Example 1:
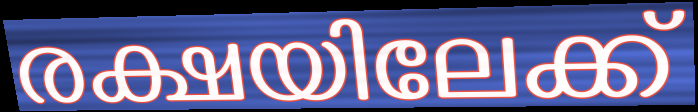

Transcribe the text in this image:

രക്ഷയിലേക്ക്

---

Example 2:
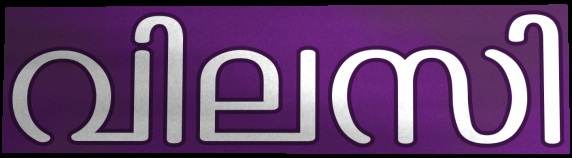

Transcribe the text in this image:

വിലസി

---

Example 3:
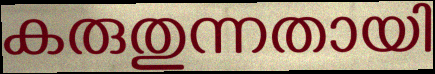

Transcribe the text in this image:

കരുതുന്നതായി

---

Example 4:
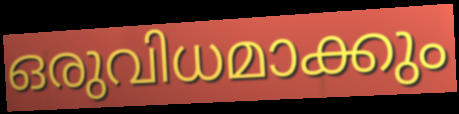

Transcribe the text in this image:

ഒരുവിധമാക്കും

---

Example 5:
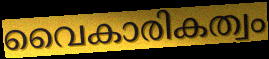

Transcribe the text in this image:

വൈകാരികത്വം